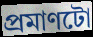
প্ৰমাণটো